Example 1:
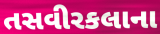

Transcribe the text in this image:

તસવીરકલાના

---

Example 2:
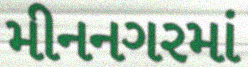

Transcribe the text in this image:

મીનનગરમાં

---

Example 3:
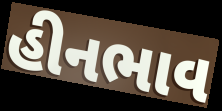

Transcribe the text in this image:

હીનભાવ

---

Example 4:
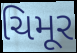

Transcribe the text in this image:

ચિમૂર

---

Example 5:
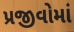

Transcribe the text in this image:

પ્રજીવોમાં